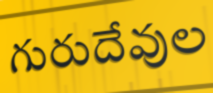
గురుదేవుల